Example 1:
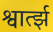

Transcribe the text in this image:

श्वार्त्झ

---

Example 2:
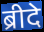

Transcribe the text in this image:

ब्रीदे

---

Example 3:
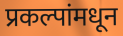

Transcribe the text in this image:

प्रकल्पांमधून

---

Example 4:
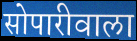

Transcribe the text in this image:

सोपारीवाला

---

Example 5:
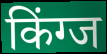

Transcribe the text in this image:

किंग्ज